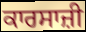
ਕਾਰਸਾਜ਼ੀ